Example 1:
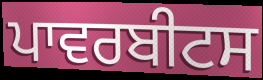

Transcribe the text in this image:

ਪਾਵਰਬੀਟਸ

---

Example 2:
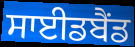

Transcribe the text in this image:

ਸਾਈਡਬੈਂਡ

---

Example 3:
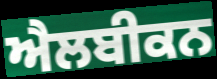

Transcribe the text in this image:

ਐਲਬੀਕਨ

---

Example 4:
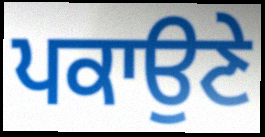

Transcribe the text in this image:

ਪਕਾਉਣੇ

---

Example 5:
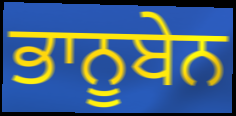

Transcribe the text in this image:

ਭਾਨੂਬੇਨ